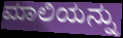
ಮಾಲಿಯನ್ನು